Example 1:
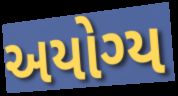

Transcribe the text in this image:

અયોગ્ય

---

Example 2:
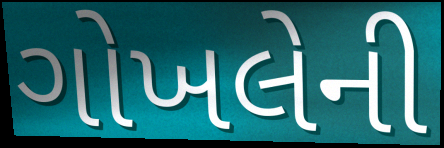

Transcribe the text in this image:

ગોખલેની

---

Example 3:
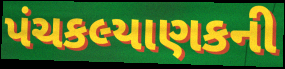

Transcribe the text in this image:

પંચકલ્યાણકની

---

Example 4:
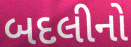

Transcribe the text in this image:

બદલીનો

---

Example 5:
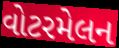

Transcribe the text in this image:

વોટરમેલન